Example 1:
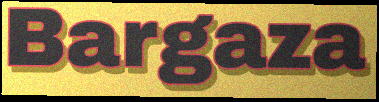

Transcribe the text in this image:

Bargaza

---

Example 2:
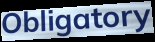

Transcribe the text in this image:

Obligatory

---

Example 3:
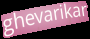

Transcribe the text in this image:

ghevarikar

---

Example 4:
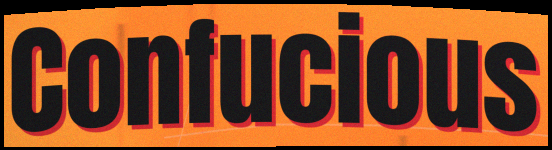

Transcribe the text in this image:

Confucious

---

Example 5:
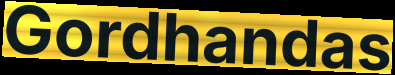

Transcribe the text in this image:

Gordhandas